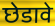
छेडावे